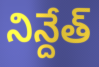
నిన్దేత్